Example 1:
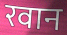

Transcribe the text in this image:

रवान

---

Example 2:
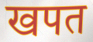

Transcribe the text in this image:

खपत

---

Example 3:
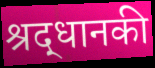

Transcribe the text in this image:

श्रद्धानकी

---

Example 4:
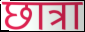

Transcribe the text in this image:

छात्रा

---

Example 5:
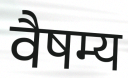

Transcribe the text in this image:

वैषम्य